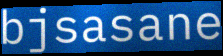
bjsasane